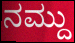
ನಮ್ದು